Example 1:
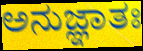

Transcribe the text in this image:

ಅನುಜ್ಞಾತಃ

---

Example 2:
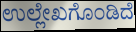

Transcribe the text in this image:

ಉಲ್ಲೇಖಗೊಂಡಿದೆ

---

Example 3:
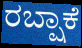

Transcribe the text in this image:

ರಬ್ಷಾಕೆ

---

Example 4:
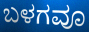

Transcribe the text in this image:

ಬಳಗವೂ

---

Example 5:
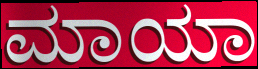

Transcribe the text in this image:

ಮಾಯಾ